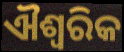
ଐଶ୍ୱରିକ